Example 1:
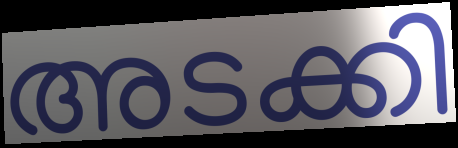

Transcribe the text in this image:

അടക്കി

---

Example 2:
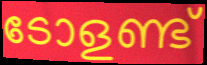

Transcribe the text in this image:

ടോളണ്ട്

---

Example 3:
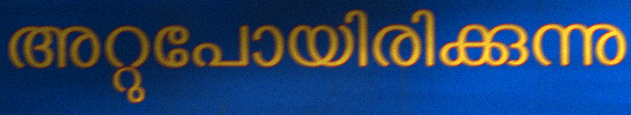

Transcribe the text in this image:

അറ്റുപോയിരിക്കുന്നു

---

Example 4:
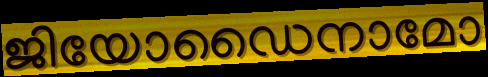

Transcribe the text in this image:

ജിയോഡൈനാമോ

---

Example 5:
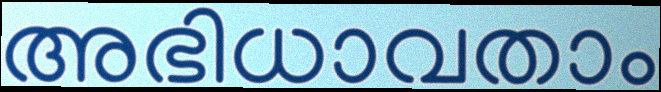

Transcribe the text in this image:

അഭിധാവതാം